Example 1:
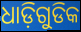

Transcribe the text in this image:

ଧାଡ଼ିଗୁଡିକ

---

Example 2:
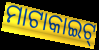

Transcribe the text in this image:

ମାଟାକାଇଟ୍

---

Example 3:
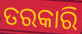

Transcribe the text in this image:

ତରକାରି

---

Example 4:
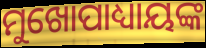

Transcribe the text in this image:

ମୁଖୋପାଧ୍ୟାୟଙ୍କ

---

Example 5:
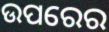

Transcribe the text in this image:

ଉପରେର